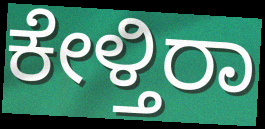
ಕೇಳ್ತಿರಾ